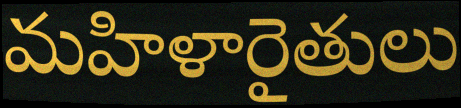
మహిళారైతులు